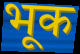
भूक